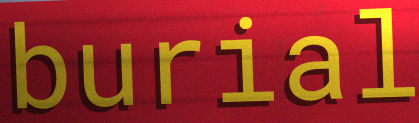
burial